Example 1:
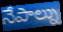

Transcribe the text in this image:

నేపాల్ను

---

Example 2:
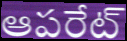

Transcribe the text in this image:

ఆపరేట్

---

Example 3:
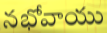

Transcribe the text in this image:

నభోవాయు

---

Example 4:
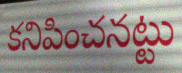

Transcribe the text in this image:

కనిపించనట్టు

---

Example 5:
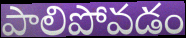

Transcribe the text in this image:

పాలిపోవడం